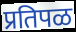
प्रतिपळ